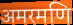
अमरमणि